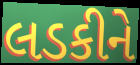
લડકીને